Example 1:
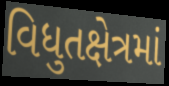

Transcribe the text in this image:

વિધુતક્ષેત્રમાં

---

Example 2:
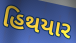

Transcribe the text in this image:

હિથયાર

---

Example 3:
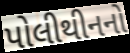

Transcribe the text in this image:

પોલીથીનનો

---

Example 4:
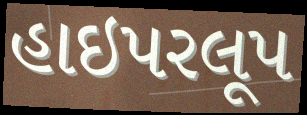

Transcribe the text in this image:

હાઇપરલૂપ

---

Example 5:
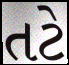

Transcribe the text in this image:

તટે